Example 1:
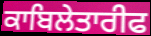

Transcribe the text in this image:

ਕਾਬਿਲੇਤਾਰੀਫ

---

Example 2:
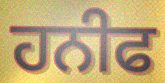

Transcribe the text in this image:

ਹਨੀਫ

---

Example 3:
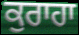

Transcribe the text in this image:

ਕੁਰਾਹਾ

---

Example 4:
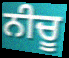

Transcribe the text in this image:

ਨੀਚੂ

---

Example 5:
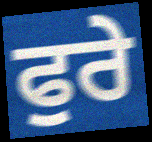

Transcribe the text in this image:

ਫੁਰੇ